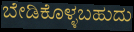
ಬೇಡಿಕೊಳ್ಳಬಹುದು